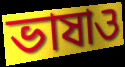
ভাষাও